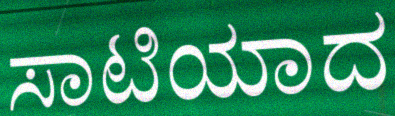
ಸಾಟಿಯಾದ